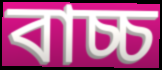
বাচ্চ